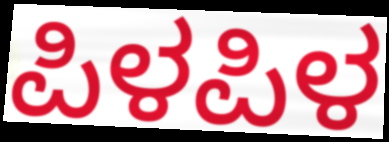
ಪಿಳಪಿಳ